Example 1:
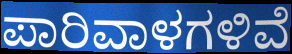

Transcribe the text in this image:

ಪಾರಿವಾಳಗಳಿವೆ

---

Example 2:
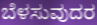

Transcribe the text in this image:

ಬೆಳಸುವುದರ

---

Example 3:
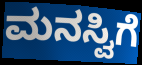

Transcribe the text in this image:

ಮನಸ್ವಿಗೆ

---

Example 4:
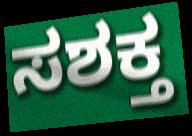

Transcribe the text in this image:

ಸಶಕ್ತ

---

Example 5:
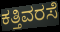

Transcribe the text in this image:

ಕತ್ತಿವರಸೆ